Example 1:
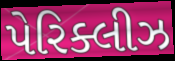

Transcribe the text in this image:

પેરિક્લીઝ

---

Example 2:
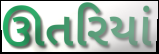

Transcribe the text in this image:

ઊતરિયાં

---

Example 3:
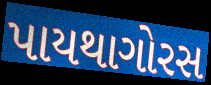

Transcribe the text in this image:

પાયથાગોરસ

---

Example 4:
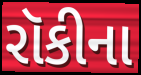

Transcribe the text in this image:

રૉકીના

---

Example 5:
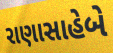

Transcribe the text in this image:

રાણાસાહેબે